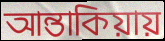
আন্তাকিয়ায়